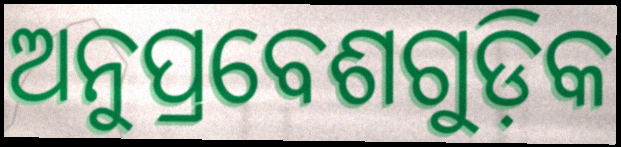
ଅନୁପ୍ରବେଶଗୁଡ଼ିକ